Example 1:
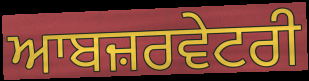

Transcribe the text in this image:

ਆਬਜ਼ਰਵੇਟਰੀ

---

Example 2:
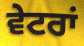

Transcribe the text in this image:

ਵੇਟਰਾਂ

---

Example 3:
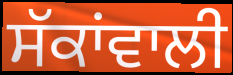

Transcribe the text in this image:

ਸੱਕਾਂਵਾਲੀ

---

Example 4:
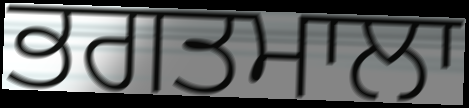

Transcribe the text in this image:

ਭਗਤਮਾਲਾ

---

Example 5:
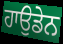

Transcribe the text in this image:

ਹਾਉਡੇਨ